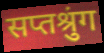
सप्तश्रुंग